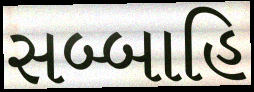
સબ્બાહિ